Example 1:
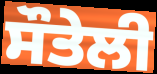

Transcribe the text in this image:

ਸੌਤੇਲੀ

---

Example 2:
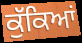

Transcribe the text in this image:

ਕੁੱਕਿਆਂ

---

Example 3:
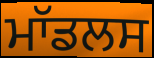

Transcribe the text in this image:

ਮਾੱਡਲਸ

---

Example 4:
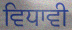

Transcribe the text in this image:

ਵਿਧਾਵੀ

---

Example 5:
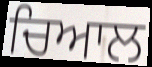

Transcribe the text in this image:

ਚਿਆਲ